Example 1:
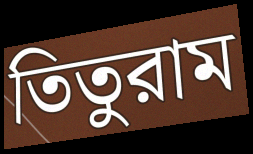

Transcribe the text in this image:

তিতুরাম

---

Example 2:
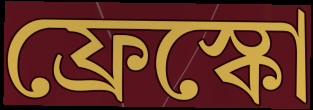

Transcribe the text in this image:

ফ্রেস্কো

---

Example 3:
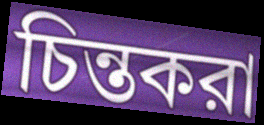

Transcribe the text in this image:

চিন্তকরা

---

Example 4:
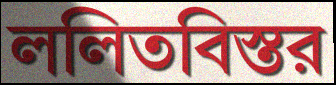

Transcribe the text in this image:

ললিতবিস্তর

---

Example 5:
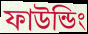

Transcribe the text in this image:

ফাউন্ডিং